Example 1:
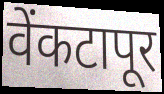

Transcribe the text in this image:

वेंकटापूर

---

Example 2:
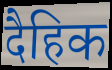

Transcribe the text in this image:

दैहिक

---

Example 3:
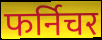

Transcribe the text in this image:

फर्निचर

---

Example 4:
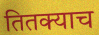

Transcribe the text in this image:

तितक्‍याच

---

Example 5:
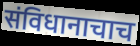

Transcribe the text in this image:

संविधानाचाच